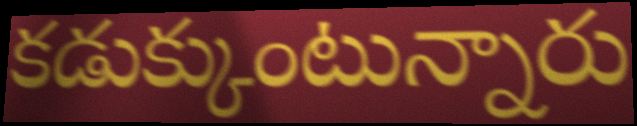
కడుక్కుంటున్నారు